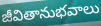
జీవితానుభవాలు